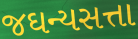
જઘન્યસત્તા